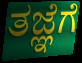
ತಜ್ಞೆಗೆ